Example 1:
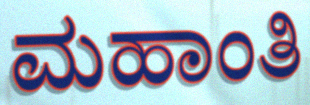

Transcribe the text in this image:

ಮಹಾಂತಿ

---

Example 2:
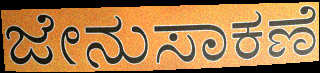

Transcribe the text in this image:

ಜೇನುಸಾಕಣೆ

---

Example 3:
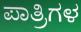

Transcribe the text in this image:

ಪಾತ್ರಿಗಳ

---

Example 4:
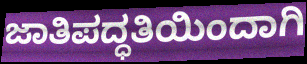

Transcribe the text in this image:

ಜಾತಿಪದ್ಧತಿಯಿಂದಾಗಿ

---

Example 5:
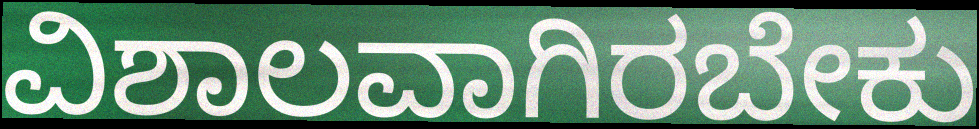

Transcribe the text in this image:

ವಿಶಾಲವಾಗಿರಬೇಕು